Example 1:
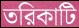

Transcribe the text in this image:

তরিকাটি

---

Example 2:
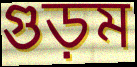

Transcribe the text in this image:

গুড়ম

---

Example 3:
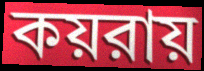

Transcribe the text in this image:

কয়রায়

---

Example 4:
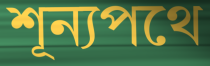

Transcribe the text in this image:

শূন্যপথে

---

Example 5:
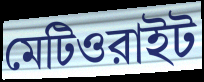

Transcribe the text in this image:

মেটিওরাইট